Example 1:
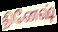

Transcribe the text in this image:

தினேஷ்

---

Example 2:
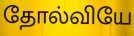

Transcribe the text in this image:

தோல்வியே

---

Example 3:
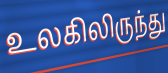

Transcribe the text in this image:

உலகிலிருந்து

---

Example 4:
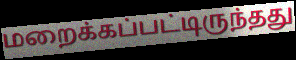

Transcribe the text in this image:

மறைக்கப்பட்டிருந்தது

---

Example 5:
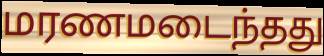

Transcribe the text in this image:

மரணமடைந்தது